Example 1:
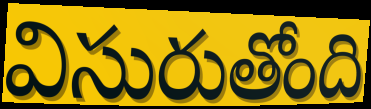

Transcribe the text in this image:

విసురుతోంది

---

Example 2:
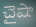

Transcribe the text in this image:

చైషా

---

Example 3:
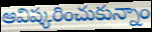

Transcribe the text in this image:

ఆవిష్కరించుకున్నాం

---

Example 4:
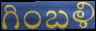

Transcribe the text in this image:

గింబళి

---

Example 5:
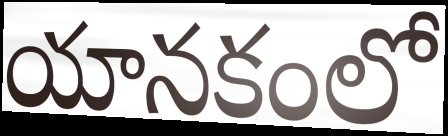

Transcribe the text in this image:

యానకంలో